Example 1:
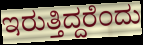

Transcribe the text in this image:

ಇರುತ್ತಿದ್ದರೆಂದು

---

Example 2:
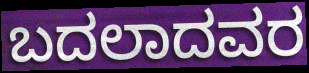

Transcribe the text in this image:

ಬದಲಾದವರ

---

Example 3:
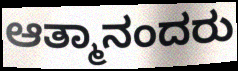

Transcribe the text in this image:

ಆತ್ಮಾನಂದರು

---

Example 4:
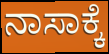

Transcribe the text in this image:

ನಾಸಾಕ್ಕೆ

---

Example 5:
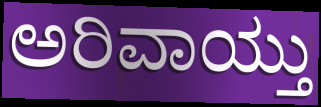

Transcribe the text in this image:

ಅರಿವಾಯ್ತು